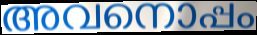
അവനൊപ്പം